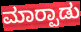
ಮಾರ‍್ಪಾಡು